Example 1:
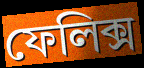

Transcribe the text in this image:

ফেলিক্স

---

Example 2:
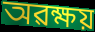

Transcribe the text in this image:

অৱক্ষয়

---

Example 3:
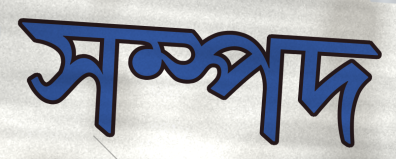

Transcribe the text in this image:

সম্পদ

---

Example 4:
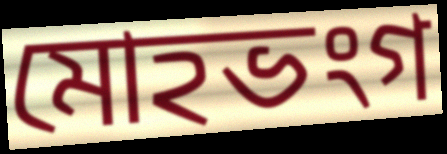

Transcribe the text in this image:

মোহভংগ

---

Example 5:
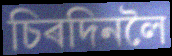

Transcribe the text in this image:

চিৰদিনলৈ